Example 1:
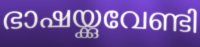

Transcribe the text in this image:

ഭാഷയ്ക്കുവേണ്ടി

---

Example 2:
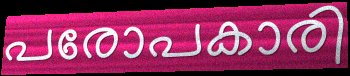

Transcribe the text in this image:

പരോപകാരി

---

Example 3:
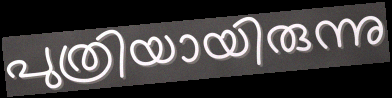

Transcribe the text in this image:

പുത്രിയായിരുന്നു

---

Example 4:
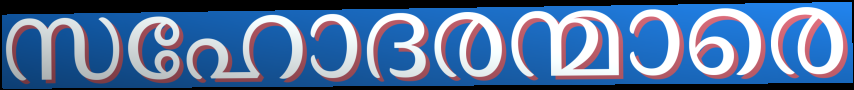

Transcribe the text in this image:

സഹോദരന്മാരെ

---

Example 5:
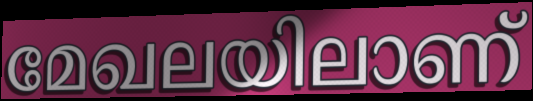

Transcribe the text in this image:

മേഖലയിലാണ്